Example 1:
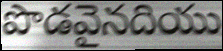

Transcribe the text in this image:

పొడవైనదియు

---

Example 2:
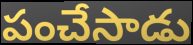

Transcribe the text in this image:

పంచేసాడు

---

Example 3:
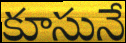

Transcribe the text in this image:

కూసునే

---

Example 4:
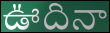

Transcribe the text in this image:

ఊదినా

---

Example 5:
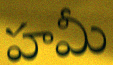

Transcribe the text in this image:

హమీ